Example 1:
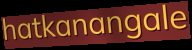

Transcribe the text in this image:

hatkanangale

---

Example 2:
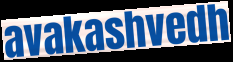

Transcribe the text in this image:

avakashvedh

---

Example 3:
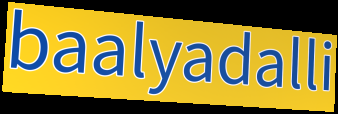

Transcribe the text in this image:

baalyadalli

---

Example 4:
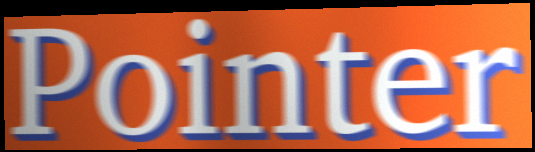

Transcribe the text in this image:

Pointer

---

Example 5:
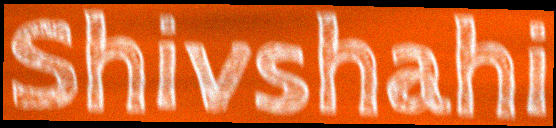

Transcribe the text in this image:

Shivshahi